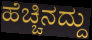
ಹೆಚ್ಚಿನದ್ದು